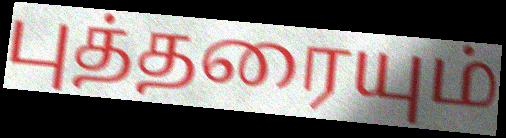
புத்தரையும்